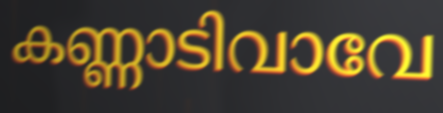
കണ്ണാടിവാവേ